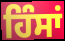
ਹਿੰਸਾਂ